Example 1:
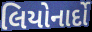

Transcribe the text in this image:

લિયોનાર્દો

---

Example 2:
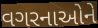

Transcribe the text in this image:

વગરનાઓને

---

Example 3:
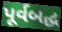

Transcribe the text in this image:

પૂર્વબદ્ધ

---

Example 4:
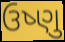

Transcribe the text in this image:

ઉષ્ણુ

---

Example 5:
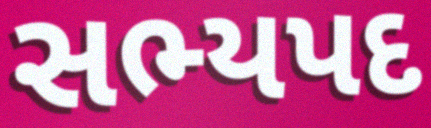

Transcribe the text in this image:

સભ્યપદ